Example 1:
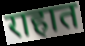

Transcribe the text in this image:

राहात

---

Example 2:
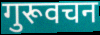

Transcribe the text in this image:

गुरूवचन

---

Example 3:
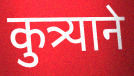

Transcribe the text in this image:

कुत्र्याने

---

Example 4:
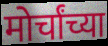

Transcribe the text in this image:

मोर्चांच्या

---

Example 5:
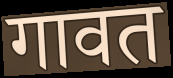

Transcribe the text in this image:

गावत